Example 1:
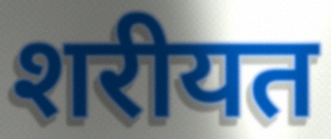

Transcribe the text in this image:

शरीयत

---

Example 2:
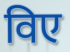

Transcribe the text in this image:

विए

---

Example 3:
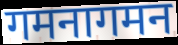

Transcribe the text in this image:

गमनागमन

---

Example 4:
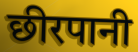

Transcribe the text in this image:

छीरपानी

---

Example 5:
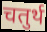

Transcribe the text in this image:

चतुर्थ